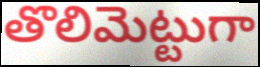
తొలిమెట్టుగా